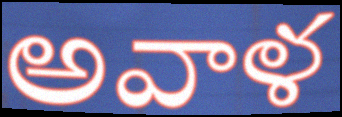
అవాళ